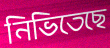
নিভিতেছে